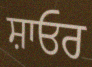
ਸ਼ਾਓਰ